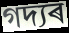
গদ্যৰ